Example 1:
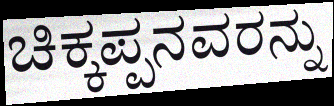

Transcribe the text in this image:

ಚಿಕ್ಕಪ್ಪನವರನ್ನು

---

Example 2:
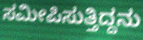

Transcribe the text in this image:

ಸಮೀಪಿಸುತ್ತಿದ್ದನು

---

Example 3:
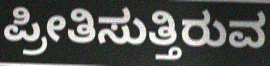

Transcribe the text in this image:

ಪ್ರೀತಿಸುತ್ತಿರುವ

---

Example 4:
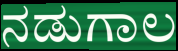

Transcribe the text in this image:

ನಡುಗಾಲ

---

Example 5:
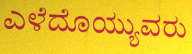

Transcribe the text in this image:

ಎಳೆದೊಯ್ಯುವರು